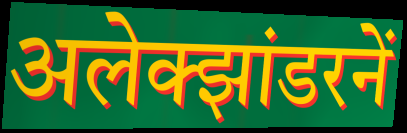
अलेक्झांडरनें